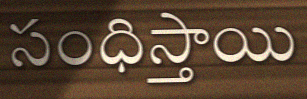
సంధిస్తాయి